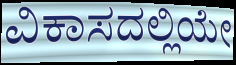
ವಿಕಾಸದಲ್ಲಿಯೇ